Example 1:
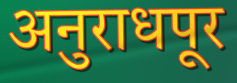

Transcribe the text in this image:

अनुराधपूर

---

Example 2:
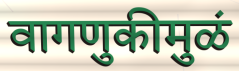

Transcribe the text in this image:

वागणुकीमुळं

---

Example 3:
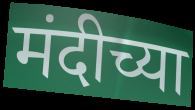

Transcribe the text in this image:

मंदीच्या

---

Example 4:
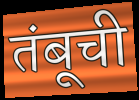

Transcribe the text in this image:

तंबूची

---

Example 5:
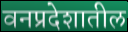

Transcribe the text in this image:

वनप्रदेशातील